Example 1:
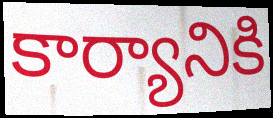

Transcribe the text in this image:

కార్యానికి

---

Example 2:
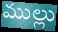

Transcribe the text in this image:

ముల్లు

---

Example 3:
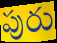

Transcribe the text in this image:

పురు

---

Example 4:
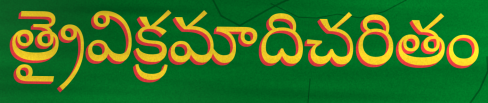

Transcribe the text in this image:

త్రైవిక్రమాదిచరితం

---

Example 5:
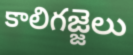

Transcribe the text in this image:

కాలిగజ్జెలు